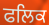
ਫਲਿਕ